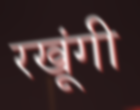
रखूंगी